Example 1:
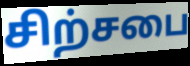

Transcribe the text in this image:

சிற்சபை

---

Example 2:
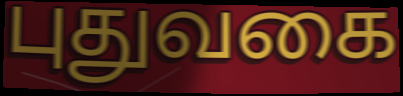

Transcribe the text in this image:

புதுவகை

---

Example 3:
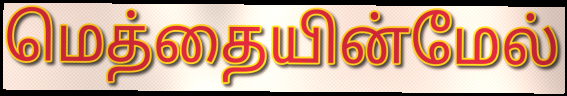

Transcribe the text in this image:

மெத்தையின்மேல்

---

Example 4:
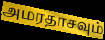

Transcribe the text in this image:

அமரதாசவும்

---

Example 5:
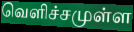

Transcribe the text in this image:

வெளிச்சமுள்ள